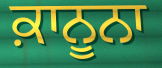
ਕ਼ਾਨੂਨਾ